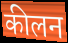
कीलन